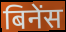
बिनेंस